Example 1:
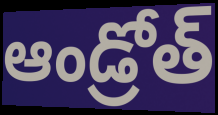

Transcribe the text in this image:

ఆండ్రోత్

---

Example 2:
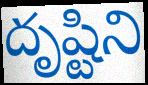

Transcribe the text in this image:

దృష్టిని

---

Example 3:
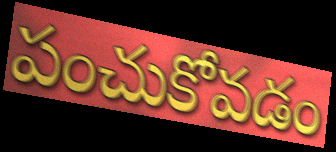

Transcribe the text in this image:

పంచుకోవడం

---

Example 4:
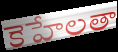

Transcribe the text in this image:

కెహేలతా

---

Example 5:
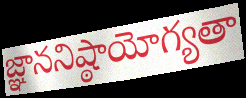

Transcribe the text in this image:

జ్ఞాననిష్ఠాయోగ్యతా